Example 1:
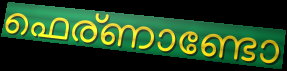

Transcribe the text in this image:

ഫെര്ണാണ്ടോ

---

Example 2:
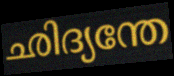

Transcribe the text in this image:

ഛിദ്യന്തേ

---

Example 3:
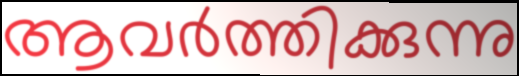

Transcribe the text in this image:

ആവർത്തിക്കുന്നു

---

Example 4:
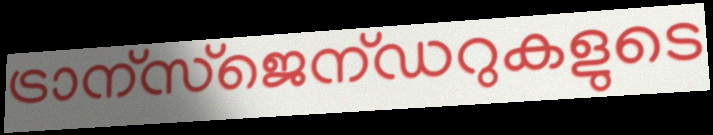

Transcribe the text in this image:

ട്രാന്സ്ജെന്ഡറുകളുടെ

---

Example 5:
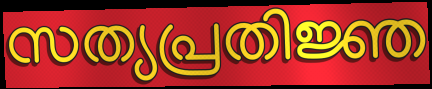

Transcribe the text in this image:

സത്യപ്രതിജ്ഞ